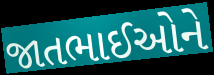
જાતભાઈઓને